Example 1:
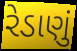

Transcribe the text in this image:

રેડાણું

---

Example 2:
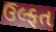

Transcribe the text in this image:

ઉલ્ફત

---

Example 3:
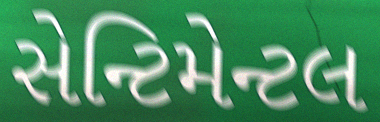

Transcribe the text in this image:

સેન્ટિમેન્ટલ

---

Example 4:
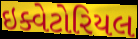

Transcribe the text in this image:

ઇક્વેટોરિયલ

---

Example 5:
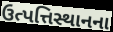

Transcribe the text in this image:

ઉત્પત્તિસ્થાનના